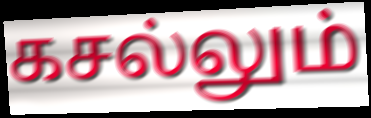
கசல்லும்